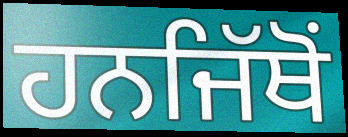
ਹਨਜਿੱਥੋਂ